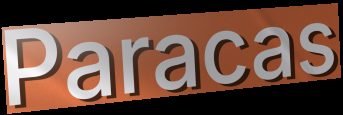
Paracas